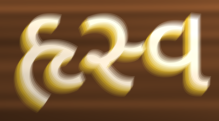
હૃસ્વ